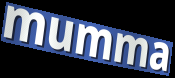
mumma